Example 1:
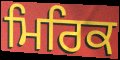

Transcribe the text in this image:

ਮਿਰਿਕ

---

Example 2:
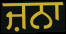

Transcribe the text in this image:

ਜ਼ਨਾ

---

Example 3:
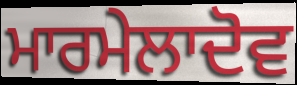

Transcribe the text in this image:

ਮਾਰਮੇਲਾਦੋਵ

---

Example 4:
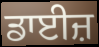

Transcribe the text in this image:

ਡਾਈਜ਼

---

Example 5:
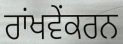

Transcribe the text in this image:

ਰਾਂਖਵੇਂਕਰਨ